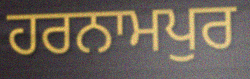
ਹਰਨਾਮਪੁਰ